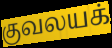
குவலயக்